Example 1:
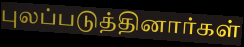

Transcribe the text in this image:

புலப்படுத்தினார்கள்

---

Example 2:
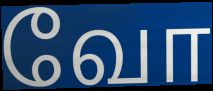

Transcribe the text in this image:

வோ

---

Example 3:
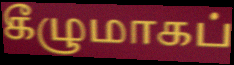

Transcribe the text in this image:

கீழுமாகப்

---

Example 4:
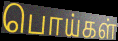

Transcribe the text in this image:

பொய்கள்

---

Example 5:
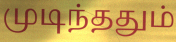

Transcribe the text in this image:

முடிந்ததும்